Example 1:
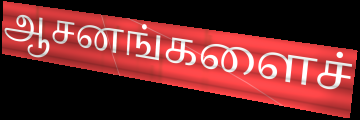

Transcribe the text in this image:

ஆசனங்களைச்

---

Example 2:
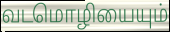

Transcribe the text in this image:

வடமொழியையும்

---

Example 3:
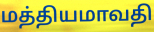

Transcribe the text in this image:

மத்தியமாவதி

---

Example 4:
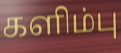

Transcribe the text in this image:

களிம்பு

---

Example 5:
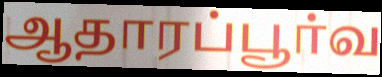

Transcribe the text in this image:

ஆதாரப்பூர்வ